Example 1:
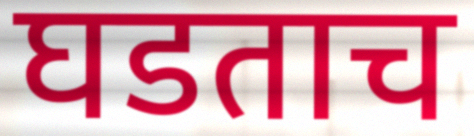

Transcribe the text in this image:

घडताच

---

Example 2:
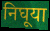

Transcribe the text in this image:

निघूया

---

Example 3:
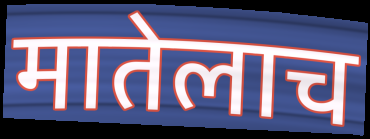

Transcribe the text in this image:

मातेलाच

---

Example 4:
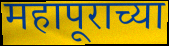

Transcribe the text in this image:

महापूराच्या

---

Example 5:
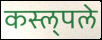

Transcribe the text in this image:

कस्ल्पले